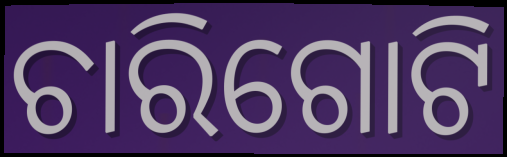
ଚାରିଗୋଟି